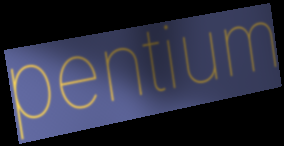
pentium